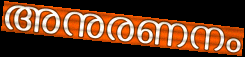
അനുരണനം